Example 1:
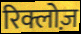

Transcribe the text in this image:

रिक्लोज़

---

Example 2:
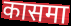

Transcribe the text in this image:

कासमा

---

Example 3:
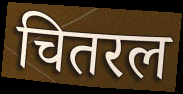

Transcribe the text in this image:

चितरल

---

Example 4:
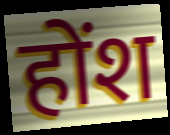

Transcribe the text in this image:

होंश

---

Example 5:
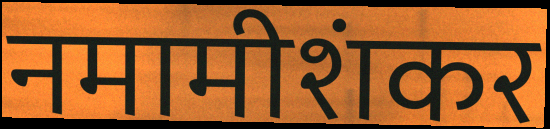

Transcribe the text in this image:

नमामीशंकर